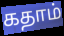
கதாம்